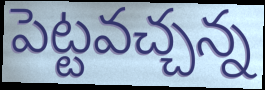
పెట్టవచ్చన్న